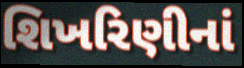
શિખરિણીનાં